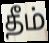
தீம்